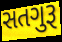
સતગુરૂ